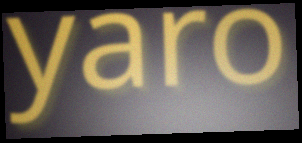
yaro